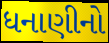
ધનાણીનો